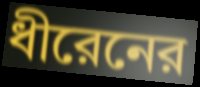
ধীরেনের